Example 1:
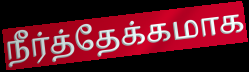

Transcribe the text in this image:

நீர்த்தேக்கமாக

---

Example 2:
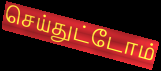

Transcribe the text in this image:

செய்துட்டோம்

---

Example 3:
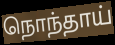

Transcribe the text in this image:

நொந்தாய்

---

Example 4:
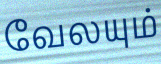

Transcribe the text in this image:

வேலயும்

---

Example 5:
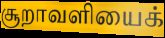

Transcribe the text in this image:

சூறாவளியைக்